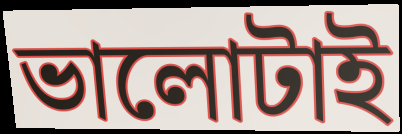
ভালোটাই